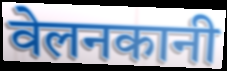
वेलनकानी